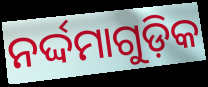
ନର୍ଦ୍ଦମାଗୁଡ଼ିକ